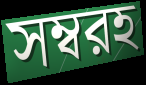
সম্বরহ